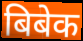
बिबेक